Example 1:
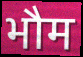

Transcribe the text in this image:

भौम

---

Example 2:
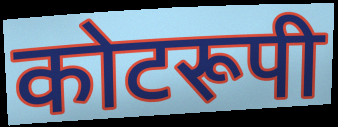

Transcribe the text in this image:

कोटरूपी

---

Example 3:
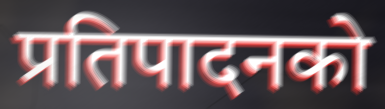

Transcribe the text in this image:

प्रतिपादनको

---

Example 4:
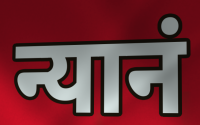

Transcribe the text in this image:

न्यानं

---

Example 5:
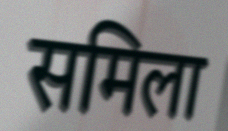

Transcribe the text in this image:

समिला